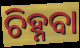
ଚିହ୍ନବା